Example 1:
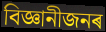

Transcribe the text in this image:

বিজ্ঞানীজনৰ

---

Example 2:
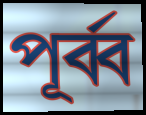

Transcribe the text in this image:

পূৰ্ব্ব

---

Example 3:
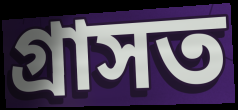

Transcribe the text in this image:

গ্ৰাসত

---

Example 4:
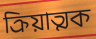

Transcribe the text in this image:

ক্ৰিয়াত্মক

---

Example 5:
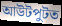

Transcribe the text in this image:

আউটপুটত